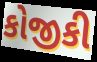
કોજીકી